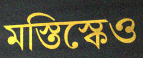
মস্তিস্কেও